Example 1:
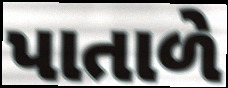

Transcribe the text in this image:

પાતાળે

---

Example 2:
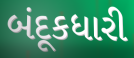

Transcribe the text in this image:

બંદૂકધારી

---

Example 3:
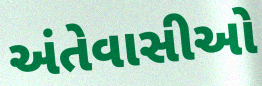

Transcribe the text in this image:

અંતેવાસીઓ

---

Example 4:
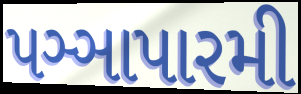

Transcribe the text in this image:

પઞ્ઞાપારમી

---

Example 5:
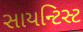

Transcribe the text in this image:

સાયન્ટિસ્ટ